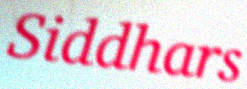
Siddhars